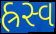
હ્રસ્વ